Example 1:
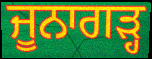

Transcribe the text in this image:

ਜੂਨਾਗੜ੍ਹ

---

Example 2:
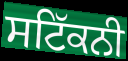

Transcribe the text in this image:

ਸਟਿੱਕਨੀ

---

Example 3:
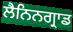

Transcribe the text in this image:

ਲੈਨਿਨਗ੍ਰਾਡ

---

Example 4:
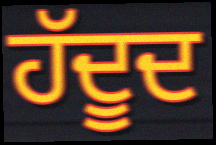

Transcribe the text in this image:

ਹੱਦੂਦ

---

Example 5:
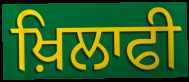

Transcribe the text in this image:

ਖ਼ਿਲਾਫੀ